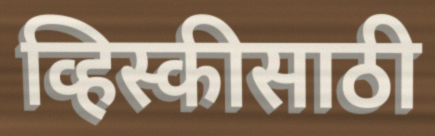
व्हिस्कीसाठी